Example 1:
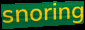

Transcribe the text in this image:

snoring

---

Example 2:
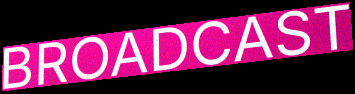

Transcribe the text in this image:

BROADCAST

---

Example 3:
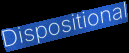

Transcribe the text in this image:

Dispositional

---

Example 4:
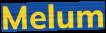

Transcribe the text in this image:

Melum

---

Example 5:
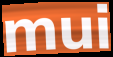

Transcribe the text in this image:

mui